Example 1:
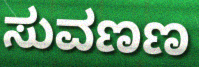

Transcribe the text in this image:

ಸುವಣಣ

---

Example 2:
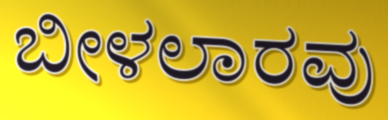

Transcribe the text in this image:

ಬೀಳಲಾರವು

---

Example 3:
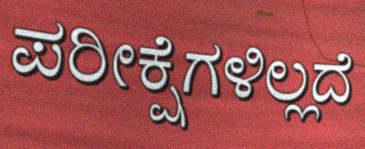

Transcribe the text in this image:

ಪರೀಕ್ಷೆಗಳಿಲ್ಲದೆ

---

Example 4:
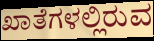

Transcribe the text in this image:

ಖಾತೆಗಳಲ್ಲಿರುವ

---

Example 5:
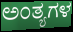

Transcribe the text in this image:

ಅಂತ್ಯಗಳ